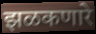
झळकणारे